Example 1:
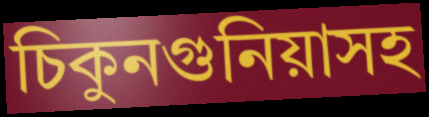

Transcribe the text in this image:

চিকুনগুনিয়াসহ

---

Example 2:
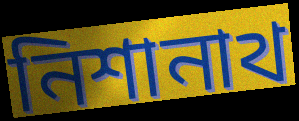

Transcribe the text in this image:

নিশানাথ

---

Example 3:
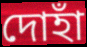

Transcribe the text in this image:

দোহাঁ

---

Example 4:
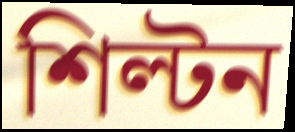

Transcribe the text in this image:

শিল্টন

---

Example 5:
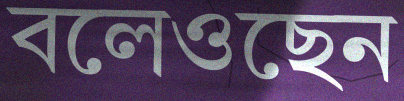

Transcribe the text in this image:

বলেওছেন